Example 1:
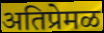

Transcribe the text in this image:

अतिप्रेमळ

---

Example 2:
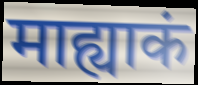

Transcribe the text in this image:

माह्याकं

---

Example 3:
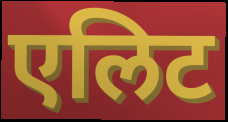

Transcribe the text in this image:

एलिट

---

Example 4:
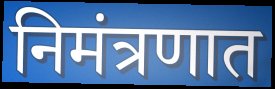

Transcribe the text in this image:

निमंत्रणात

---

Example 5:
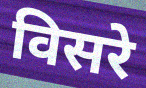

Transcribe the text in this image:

विसरे